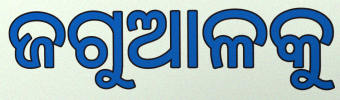
ଜଗୁଆଳକୁ